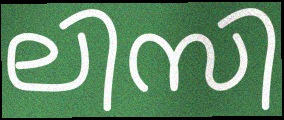
ലിസി